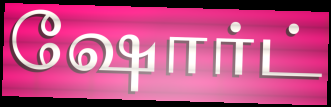
ஷோர்ட்